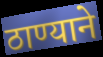
ठाण्याने